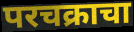
परचक्राचा